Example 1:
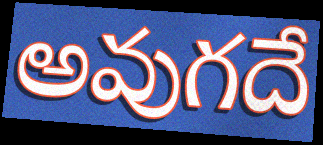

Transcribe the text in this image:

అవుగదే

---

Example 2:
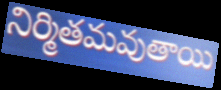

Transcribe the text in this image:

నిర్మితమవుతాయి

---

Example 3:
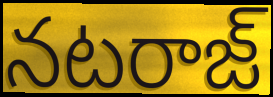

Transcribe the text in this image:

నటరాజ్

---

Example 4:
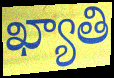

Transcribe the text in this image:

ఖ్యాతి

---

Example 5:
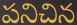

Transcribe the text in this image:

పనిచిన